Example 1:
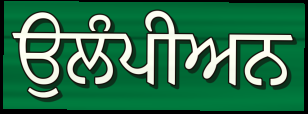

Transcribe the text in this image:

ਉੁਲੰਪੀਅਨ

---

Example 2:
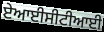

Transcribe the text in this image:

ਏਆਈਸੀਟੀਆਈ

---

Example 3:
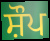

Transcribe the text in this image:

ਸ਼ੌਪ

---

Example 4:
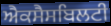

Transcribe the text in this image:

ਐਕਸੈਸਬਿਲਟੀ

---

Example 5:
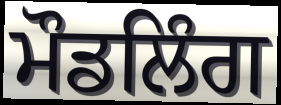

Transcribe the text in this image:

ਮੌਡਲਿੰਗ